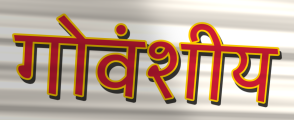
गोवंशीय